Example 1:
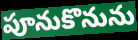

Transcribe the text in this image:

పూనుకొనును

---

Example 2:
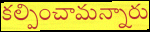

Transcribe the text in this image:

కల్పించామన్నారు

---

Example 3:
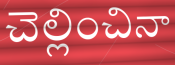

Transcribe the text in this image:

చెల్లించినా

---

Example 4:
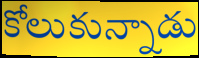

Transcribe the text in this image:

కోలుకున్నాడు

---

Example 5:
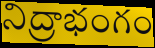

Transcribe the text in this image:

నిద్రాభంగం